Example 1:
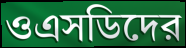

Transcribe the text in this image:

ওএসডিদের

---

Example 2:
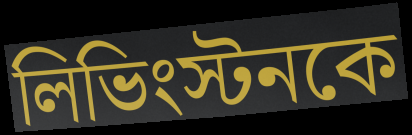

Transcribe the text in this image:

লিভিংস্টনকে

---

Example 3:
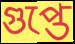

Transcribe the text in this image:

গুপ্তে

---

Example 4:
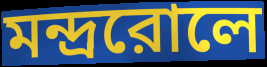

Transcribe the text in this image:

মন্দ্ররোলে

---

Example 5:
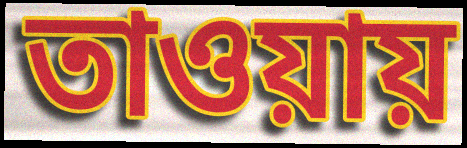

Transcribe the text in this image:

তাওয়ায়